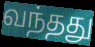
வந்தது